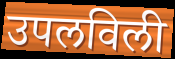
उपलविली